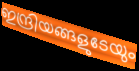
ഇന്ദ്രിയങ്ങളുടേയും